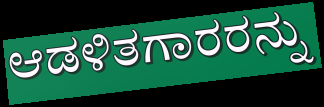
ಆಡಳಿತಗಾರರನ್ನು